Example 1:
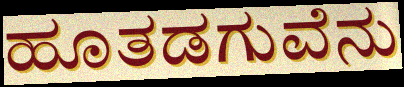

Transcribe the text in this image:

ಹೂತಡಗುವೆನು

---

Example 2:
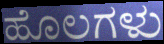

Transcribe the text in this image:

ಹೊಲಗಳು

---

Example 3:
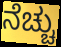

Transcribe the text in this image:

ನೆಚ್ಚು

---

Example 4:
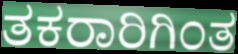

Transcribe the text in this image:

ತಕರಾರಿಗಿಂತ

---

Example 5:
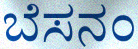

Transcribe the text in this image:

ಬೆಸನಂ